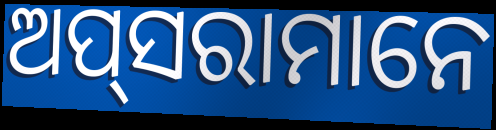
ଅପ୍‍ସରାମାନେ